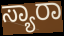
ಸ್ಯಾರಾ